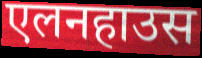
एलनहाउस